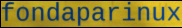
fondaparinux